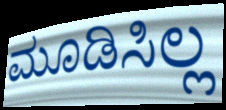
ಮೂಡಿಸಿಲ್ಲ